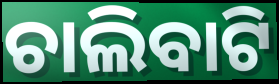
ଚାଲିବାଟି